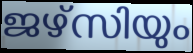
ജഴ്സിയും